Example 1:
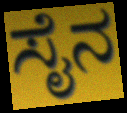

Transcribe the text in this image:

ಸೈನ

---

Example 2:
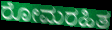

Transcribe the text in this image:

ರೋಮರಹಿತ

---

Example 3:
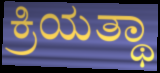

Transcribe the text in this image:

ಕ್ರಿಯತ್ಥಾ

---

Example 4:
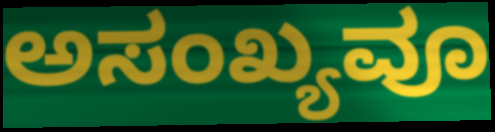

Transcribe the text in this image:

ಅಸಂಖ್ಯವೂ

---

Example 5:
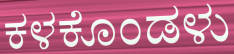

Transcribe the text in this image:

ಕಳಕೊಂಡಳು